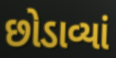
છોડાવ્યાં